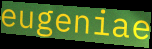
eugeniae